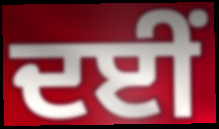
ਦਈਂ